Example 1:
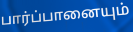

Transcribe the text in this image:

பார்ப்பானையும்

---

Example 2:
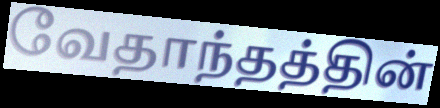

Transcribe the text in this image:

வேதாந்தத்தின்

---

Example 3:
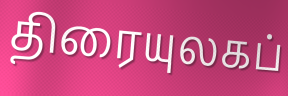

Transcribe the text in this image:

திரையுலகப்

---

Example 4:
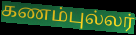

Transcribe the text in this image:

கணம்புல்லர்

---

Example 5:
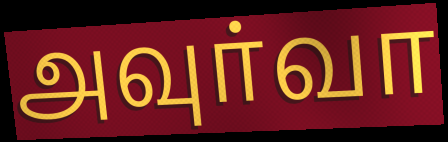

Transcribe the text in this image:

அவுர்வா